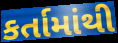
કર્તામાંથી